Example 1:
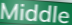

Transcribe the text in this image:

Middle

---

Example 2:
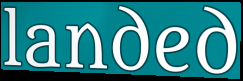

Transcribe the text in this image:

landed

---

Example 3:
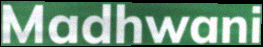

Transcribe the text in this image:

Madhwani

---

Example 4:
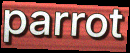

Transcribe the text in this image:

parrot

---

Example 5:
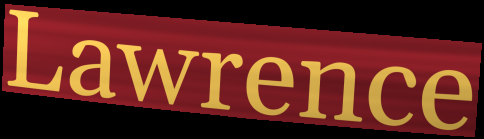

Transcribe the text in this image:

Lawrence